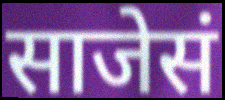
साजेसं